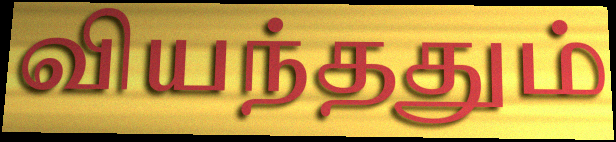
வியந்ததும்